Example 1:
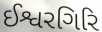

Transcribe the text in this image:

ઈશ્વરગિરિ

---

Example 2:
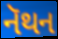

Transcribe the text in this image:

નૅથન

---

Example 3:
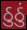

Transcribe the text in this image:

ઠુઠું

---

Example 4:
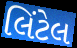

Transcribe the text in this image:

લિંટેલ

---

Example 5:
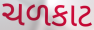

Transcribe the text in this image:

ચળકાટ